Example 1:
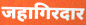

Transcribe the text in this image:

जहागिरदार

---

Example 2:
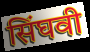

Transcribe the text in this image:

सिंघवी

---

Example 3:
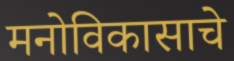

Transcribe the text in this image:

मनोविकासाचे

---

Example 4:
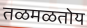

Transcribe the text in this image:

तळमळतोय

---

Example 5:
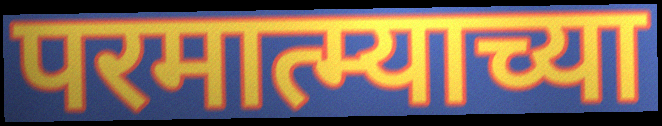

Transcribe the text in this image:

परमात्म्याच्या